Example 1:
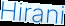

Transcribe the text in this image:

Hirani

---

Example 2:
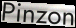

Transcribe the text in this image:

Pinzon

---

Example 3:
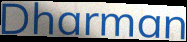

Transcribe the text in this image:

Dharman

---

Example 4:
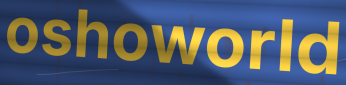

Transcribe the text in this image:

oshoworld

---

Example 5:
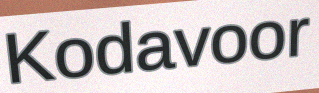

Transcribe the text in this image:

Kodavoor